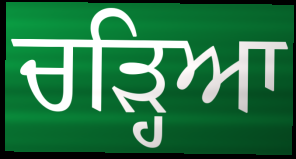
ਚੜ੍ਹਿਆ